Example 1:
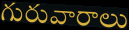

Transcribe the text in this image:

గురువారాలు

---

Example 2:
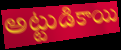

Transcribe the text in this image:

అట్టుడికాయి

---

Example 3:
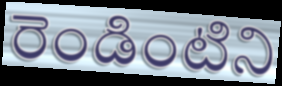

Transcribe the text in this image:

రెండింటిని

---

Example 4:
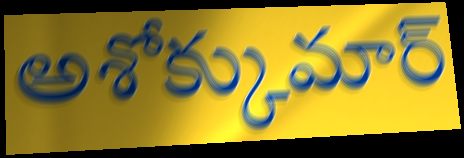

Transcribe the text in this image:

అశోక్కుమార్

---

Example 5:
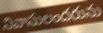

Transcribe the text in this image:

నివాసులందరును